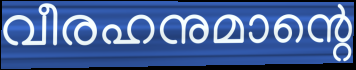
വീരഹനുമാന്റെ